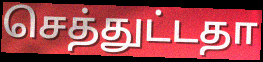
செத்துட்டதா